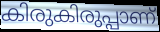
കിരുകിരുപ്പാണ്